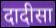
दादीसा